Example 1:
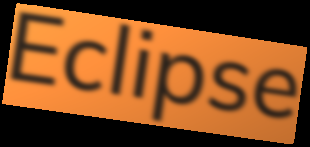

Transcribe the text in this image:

Eclipse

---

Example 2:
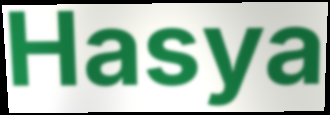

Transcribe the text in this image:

Hasya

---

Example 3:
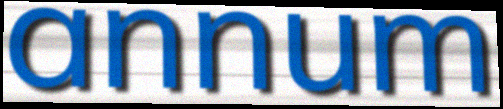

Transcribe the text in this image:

annum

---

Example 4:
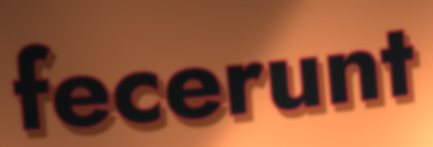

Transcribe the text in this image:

fecerunt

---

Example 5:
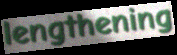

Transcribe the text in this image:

lengthening